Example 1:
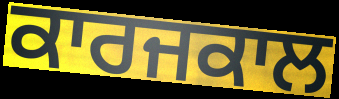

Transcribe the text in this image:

ਕਾਰਜਕਾਲ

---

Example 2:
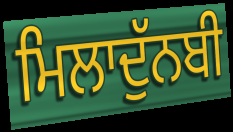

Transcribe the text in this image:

ਮਿਲਾਦੁੱਨਬੀ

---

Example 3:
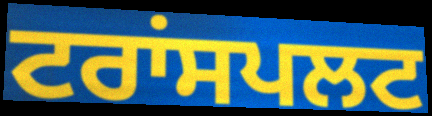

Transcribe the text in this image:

ਟਰਾਂਸਪਲਟ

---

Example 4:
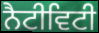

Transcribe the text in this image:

ਨੈਟੀਵਿਟੀ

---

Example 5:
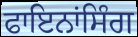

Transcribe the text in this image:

ਫਾਇਨਾਂਸਿੰਗ